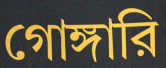
গোঙ্গারি